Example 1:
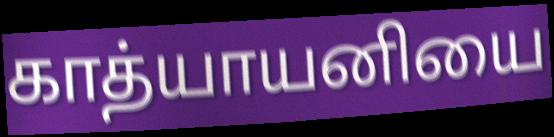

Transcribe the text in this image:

காத்யாயனியை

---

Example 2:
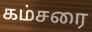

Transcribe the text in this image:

கம்சரை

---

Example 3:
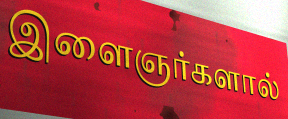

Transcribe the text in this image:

இளைஞர்களால்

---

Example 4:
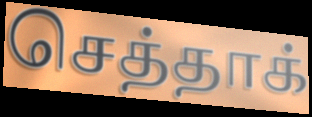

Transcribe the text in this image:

செத்தாக்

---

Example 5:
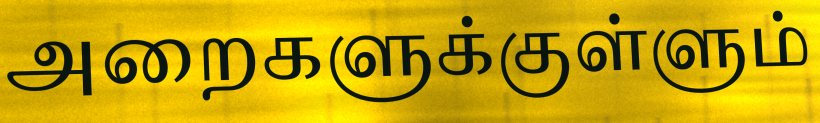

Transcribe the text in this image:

அறைகளுக்குள்ளும்